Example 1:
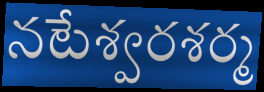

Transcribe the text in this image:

నటేశ్వరశర్మ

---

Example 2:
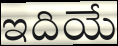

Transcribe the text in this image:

ఇదియే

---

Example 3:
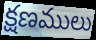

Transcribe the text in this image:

క్షణములు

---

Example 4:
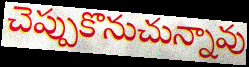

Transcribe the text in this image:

చెప్పుకొనుచున్నావు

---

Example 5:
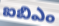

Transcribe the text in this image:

ఐబిఎం